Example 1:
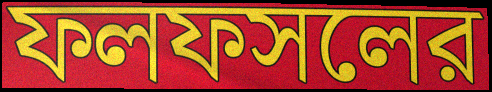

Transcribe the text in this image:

ফলফসলের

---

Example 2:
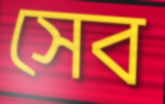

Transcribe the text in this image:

সেব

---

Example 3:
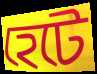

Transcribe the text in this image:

হেটে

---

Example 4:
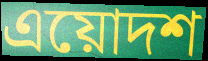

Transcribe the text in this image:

এয়োদশ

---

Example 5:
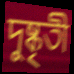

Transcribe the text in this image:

দুষ্কৃতী